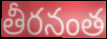
తీరనంత